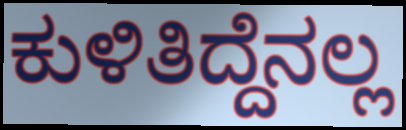
ಕುಳಿತಿದ್ದೆನಲ್ಲ